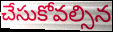
చేసుకోవల్సిన